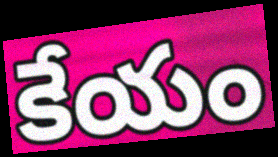
కేయం